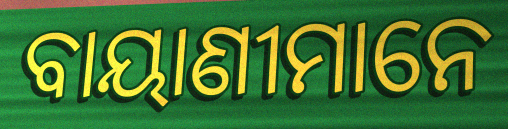
ବାୟାଣୀମାନେ